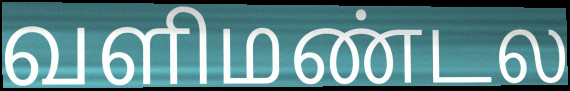
வளிமண்டல